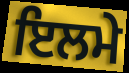
ਇਲਮੇ